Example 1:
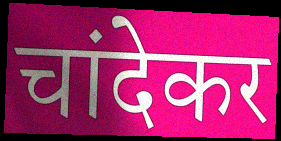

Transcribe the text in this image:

चांदेकर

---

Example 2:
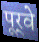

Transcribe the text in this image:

पूर्वे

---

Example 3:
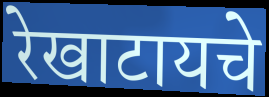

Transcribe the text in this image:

रेखाटायचे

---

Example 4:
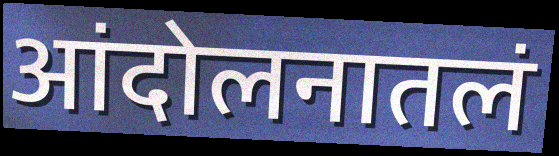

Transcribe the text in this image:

आंदोलनातलं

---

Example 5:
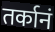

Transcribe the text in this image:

तर्कानं